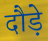
दौड़े